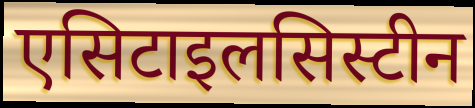
एसिटाइलसिस्टीन